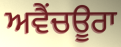
ਅਵੈਂਚਊਰਾ